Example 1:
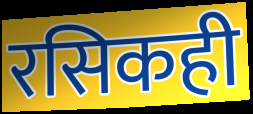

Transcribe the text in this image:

रसिकही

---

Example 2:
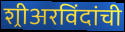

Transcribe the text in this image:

श्रीअरविंदांची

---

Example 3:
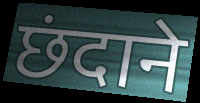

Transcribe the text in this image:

छंदाने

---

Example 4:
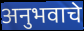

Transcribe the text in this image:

अनुभवाचे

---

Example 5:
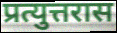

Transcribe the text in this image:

प्रत्युत्तरास